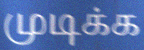
முடிக்க